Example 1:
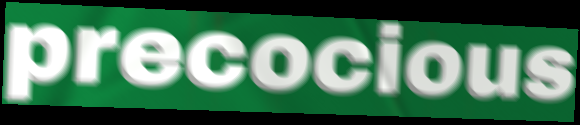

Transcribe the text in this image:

precocious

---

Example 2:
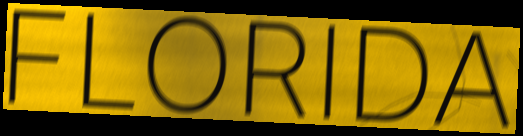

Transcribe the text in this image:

FLORIDA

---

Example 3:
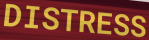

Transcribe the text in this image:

DISTRESS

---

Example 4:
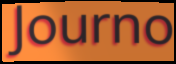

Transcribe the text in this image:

Journo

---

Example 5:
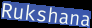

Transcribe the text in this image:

Rukshana